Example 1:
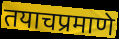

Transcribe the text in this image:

तयाचप्रमाणे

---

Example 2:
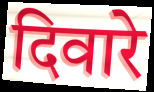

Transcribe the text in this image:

दिवारे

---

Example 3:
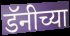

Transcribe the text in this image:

डॅनीच्या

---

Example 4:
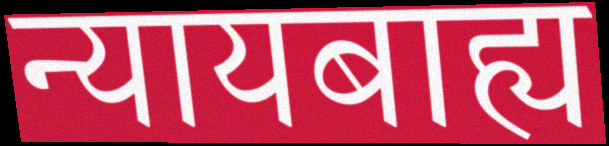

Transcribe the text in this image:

न्यायबाह्य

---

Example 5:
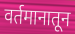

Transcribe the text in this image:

वर्तमानातून